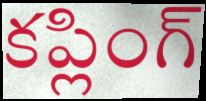
కప్లింగ్